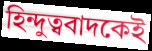
হিন্দুত্ববাদকেই